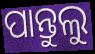
ପାନ୍ତୁଲୁ